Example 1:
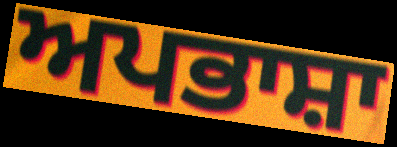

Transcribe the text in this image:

ਅਪਭਾਸ਼ਾ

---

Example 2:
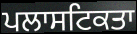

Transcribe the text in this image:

ਪਲਾਸਟਿਕਤਾ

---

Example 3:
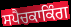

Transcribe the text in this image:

ਸਪੈਚਕਾਕਿੰਗ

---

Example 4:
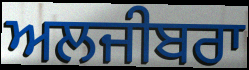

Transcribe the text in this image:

ਅਲਜੀਬਰਾ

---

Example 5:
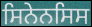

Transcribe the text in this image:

ਸਿਨੇਨਸਿਸ